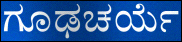
ಗೂಢಚರ್ಯೆ